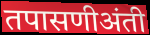
तपासणीअंती